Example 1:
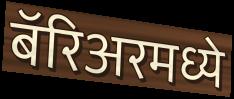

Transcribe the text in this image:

बॅरिअरमध्ये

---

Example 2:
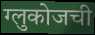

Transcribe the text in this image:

ग्लुकोजची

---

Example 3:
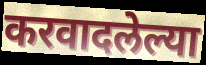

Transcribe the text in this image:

करवादलेल्या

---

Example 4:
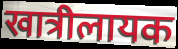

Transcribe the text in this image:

खात्रीलायक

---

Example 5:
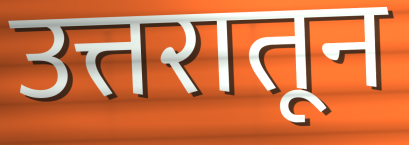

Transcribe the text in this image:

उत्तरातून